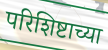
परिशिष्टाच्या